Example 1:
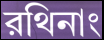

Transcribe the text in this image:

রথিনাং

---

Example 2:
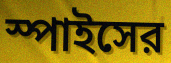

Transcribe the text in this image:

স্পাইসের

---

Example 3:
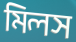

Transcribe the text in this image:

মিলস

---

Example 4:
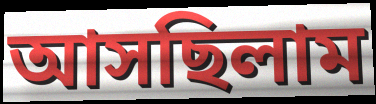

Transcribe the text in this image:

আসছিলাম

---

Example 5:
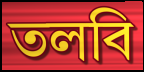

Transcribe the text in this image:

তলবি